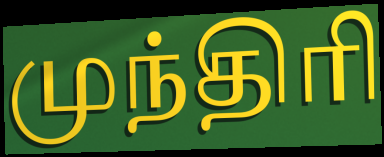
முந்திரி